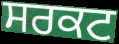
ਸਰਕਟ